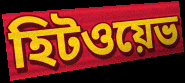
হিটওয়েভ